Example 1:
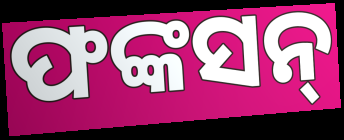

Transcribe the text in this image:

ଫଙ୍କସନ୍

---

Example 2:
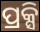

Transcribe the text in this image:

ପ୍ରକ୍ସି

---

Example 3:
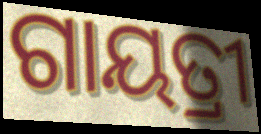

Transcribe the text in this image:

ଗାୟତ୍ରୀ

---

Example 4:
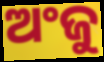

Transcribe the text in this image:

ଅଂଜୁ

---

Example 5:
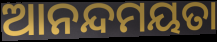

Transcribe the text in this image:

ଆନନ୍ଦମୟତା